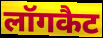
लॉगकैट